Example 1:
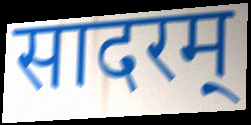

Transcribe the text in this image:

सादरम्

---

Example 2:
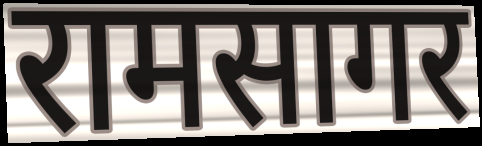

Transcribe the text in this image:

रामसागर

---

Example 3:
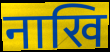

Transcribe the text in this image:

नाखि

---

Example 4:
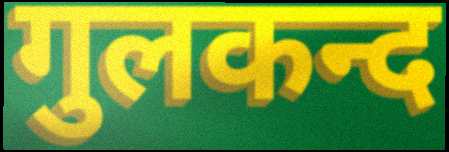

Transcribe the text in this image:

गुलकन्द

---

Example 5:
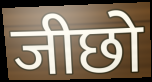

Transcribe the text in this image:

जीछो